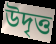
উদৃত্ত